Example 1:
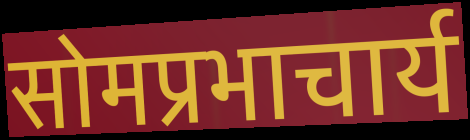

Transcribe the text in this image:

सोमप्रभाचार्य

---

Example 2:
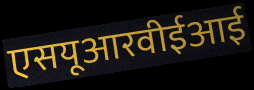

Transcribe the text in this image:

एसयूआरवीईआई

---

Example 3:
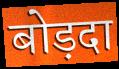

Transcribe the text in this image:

बोड़दा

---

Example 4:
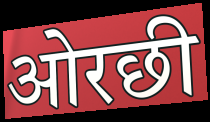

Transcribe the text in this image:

ओरछी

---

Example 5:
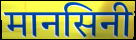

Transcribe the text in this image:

मानसिनी